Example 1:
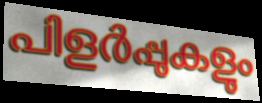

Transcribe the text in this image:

പിളർപ്പുകളും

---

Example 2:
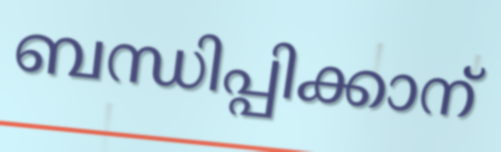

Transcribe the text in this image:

ബന്ധിപ്പിക്കാന്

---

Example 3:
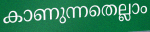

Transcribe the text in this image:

കാണുന്നതെല്ലാം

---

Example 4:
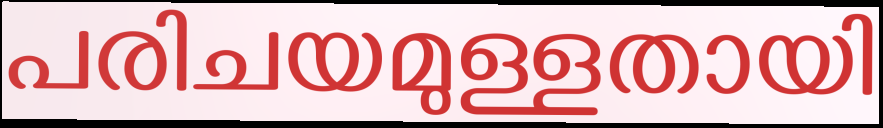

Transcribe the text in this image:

പരിചയമുള്ളതായി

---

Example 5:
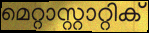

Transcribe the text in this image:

മെറ്റാസ്റ്റാറ്റിക്